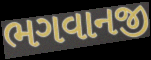
ભગવાનજી